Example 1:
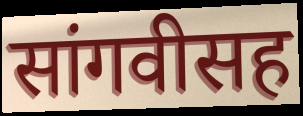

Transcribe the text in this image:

सांगवीसह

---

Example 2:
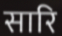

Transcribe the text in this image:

सारि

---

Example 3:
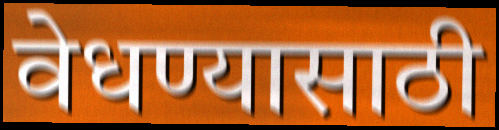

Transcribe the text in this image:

वेधण्यासाठी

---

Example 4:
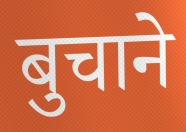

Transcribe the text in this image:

बुचाने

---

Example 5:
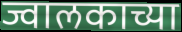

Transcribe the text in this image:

ज्वालकाच्या